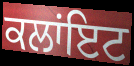
ਕਲਾਂਇਟ